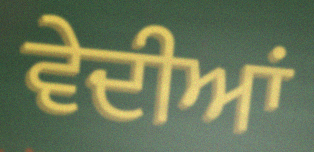
ਵੇਦੀਆਂ